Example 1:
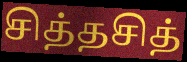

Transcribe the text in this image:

சித்தசித்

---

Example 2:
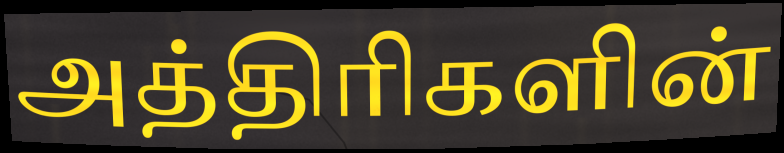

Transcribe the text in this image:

அத்திரிகளின்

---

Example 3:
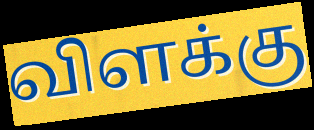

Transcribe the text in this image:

விளக்கு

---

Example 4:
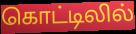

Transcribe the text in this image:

கொட்டிலில்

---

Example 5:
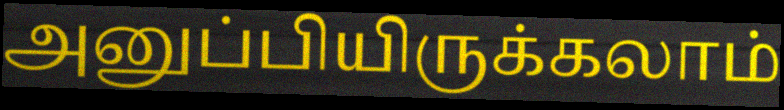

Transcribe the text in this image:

அனுப்பியிருக்கலாம்